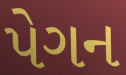
પેગન